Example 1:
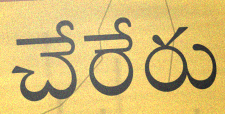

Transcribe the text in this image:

చేరేరు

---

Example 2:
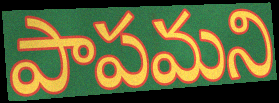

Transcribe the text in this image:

పాపమని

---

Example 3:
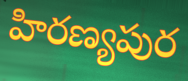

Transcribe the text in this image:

హిరణ్యపుర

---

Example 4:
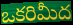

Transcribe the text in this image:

ఒకరిమీద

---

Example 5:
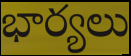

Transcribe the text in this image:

భార్యలు